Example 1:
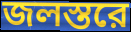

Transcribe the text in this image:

জলস্তরে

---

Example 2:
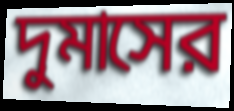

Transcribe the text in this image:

দুমাসের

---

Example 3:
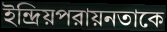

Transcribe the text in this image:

ইন্দ্রিয়পরায়নতাকে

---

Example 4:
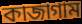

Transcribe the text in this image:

কাজাগাম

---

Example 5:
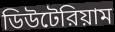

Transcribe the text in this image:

ডিউটেরিয়াম